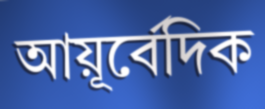
আয়ূর্বেদিক